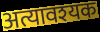
अत्यावश्‍यक